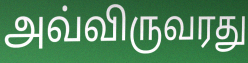
அவ்விருவரது